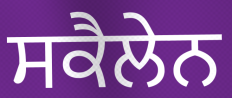
ਸਕੈਲੇਨ